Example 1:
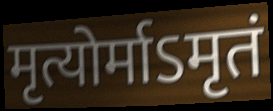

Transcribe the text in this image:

मृत्योर्माऽमृतं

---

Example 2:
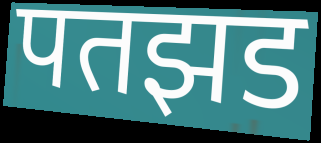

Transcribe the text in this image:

पतझड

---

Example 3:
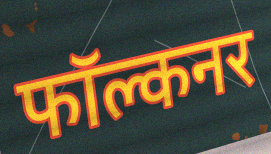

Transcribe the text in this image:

फॉल्कनर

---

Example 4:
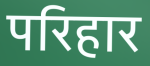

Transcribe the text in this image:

परिहार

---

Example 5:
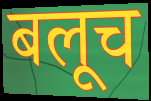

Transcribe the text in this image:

बलूच